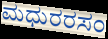
ಮಧುರರಸಂ